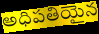
అధిపతియైన